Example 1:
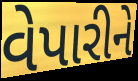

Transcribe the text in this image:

વેપારીને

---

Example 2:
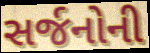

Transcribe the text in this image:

સર્જનોની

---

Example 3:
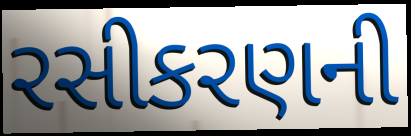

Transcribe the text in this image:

રસીકરણની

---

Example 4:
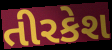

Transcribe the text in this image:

તીરકેશ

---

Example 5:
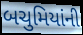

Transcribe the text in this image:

બચુમિયાંની